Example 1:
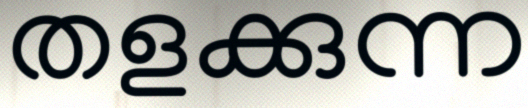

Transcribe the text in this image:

തളക്കുന്ന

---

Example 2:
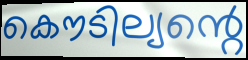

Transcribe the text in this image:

കൌടില്യന്റെ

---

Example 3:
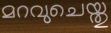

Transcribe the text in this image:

മറവുചെയ്തു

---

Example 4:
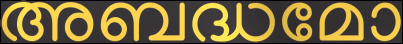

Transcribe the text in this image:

അബദ്ധമോ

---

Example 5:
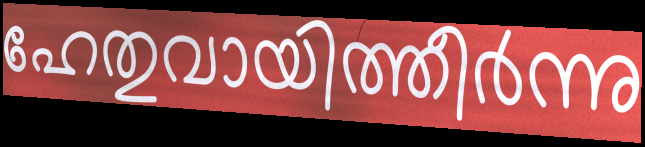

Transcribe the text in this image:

ഹേതുവായിത്തീർന്നു